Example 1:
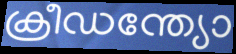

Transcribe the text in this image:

ക്രീഡന്ത്യോ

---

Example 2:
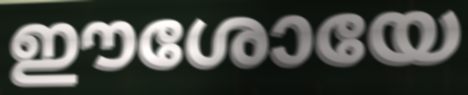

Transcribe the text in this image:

ഈശോയേ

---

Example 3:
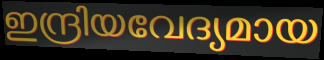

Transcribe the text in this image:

ഇന്ദ്രിയവേദ്യമായ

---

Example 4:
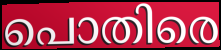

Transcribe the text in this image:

പൊതിരെ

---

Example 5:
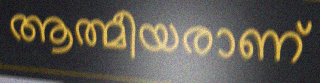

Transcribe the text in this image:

ആത്മീയരാണ്